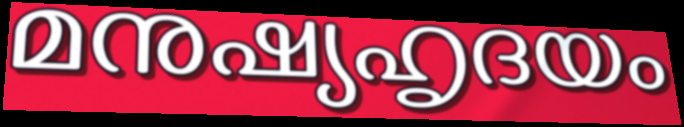
മനുഷ്യഹൃദയം